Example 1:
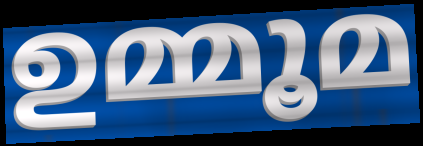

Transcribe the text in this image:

ഉമ്മൂമ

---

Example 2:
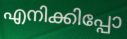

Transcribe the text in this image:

എനിക്കിപ്പോ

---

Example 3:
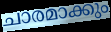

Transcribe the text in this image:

ചാരമാക്കും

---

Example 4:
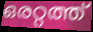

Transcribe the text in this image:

ഒരറ്റത്ത്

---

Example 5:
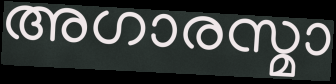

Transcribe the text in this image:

അഗാരസ്മാ